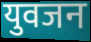
युवजन